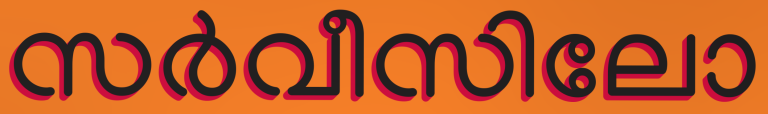
സർവീസിലോ